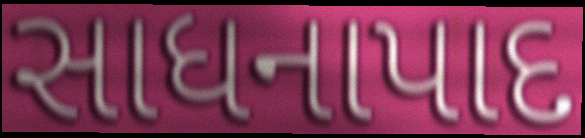
સાધનાપાદ